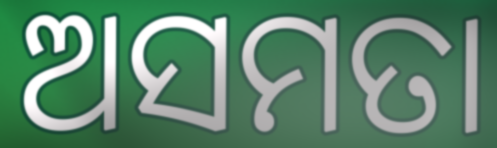
ଅସମତା